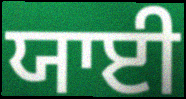
ਯਾਈ